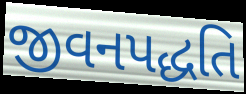
જીવનપદ્ધતિ